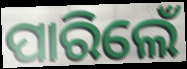
ପାରିଲେଁ